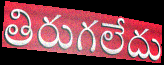
తిరుగలేదు